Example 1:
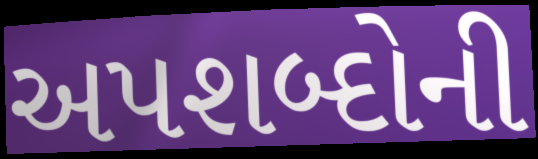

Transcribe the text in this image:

અપશબ્દોની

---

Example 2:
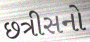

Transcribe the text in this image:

છત્રીસનો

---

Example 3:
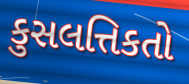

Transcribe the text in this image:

કુસલત્તિકતો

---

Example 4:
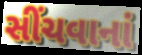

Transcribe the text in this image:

સીંચવાનાં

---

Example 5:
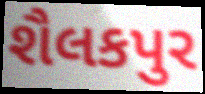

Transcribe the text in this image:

શૈલકપુર